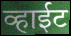
व्हाईट